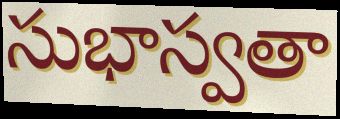
సుభాస్వతా